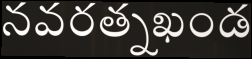
నవరత్నఖండ